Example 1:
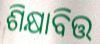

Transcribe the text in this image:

ଶିକ୍ଷାବିତ୍ତ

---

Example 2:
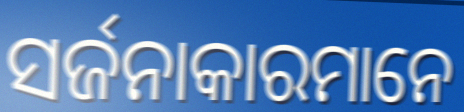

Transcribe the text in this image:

ସର୍ଜନାକାରମାନେ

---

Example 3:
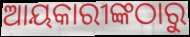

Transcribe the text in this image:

ଆୟକାରୀଙ୍କଠାରୁ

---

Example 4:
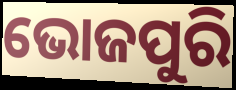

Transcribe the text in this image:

ଭୋଜପୁରି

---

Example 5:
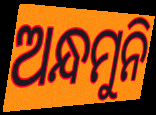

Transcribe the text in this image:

ଅନ୍ଧମୁନି